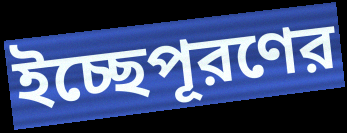
ইচ্ছেপূরণের